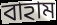
বাহাম